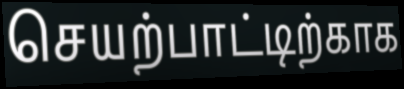
செயற்பாட்டிற்காக